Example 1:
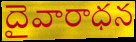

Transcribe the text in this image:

దైవారాధన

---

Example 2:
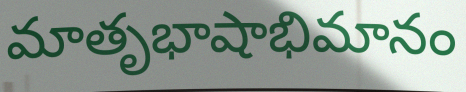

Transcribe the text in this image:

మాతృభాషాభిమానం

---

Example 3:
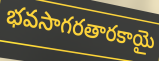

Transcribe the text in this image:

భవసాగరతారకాయై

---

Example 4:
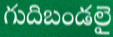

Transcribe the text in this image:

గుదిబండలై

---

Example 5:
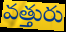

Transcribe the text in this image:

వత్తురు